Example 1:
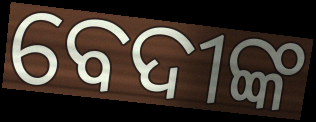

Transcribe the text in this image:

ବେଦୀଙ୍କ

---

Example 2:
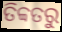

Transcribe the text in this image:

ତିବ୍ବତରୁ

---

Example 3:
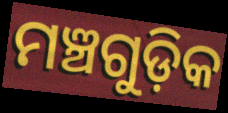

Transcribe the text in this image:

ମଞ୍ଚଗୁଡ଼ିକ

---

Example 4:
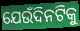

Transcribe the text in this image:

ଯେଉଁଦିନଟିକୁ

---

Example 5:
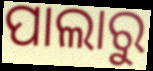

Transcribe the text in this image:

ପାଲାରୁ